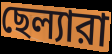
ছেল্যারা